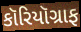
કૉરિયૉગ્રાફ